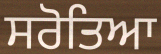
ਸਰੋਤਿਆ